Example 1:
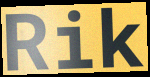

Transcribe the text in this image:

Rik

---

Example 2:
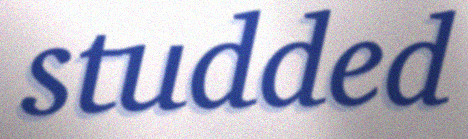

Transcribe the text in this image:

studded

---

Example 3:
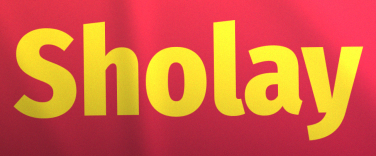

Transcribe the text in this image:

Sholay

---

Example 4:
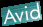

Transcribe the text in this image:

Avid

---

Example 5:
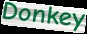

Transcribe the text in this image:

Donkey